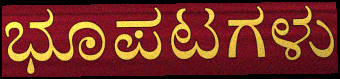
ಭೂಪಟಗಳು